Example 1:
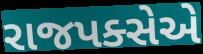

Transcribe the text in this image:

રાજપક્સેએ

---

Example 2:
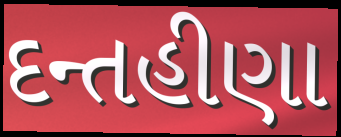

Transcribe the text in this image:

દન્તહીણા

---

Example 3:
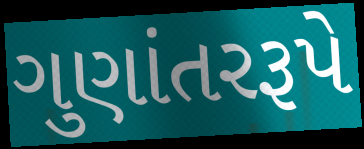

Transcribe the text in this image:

ગુણાંતરરૂપે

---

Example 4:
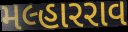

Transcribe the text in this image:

મલ્હારરાવ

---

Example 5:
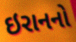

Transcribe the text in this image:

ઇરાનનો